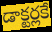
డాక్టర్లకే